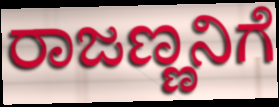
ರಾಜಣ್ಣನಿಗೆ